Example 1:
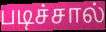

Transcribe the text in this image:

படிச்சால்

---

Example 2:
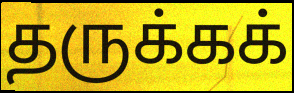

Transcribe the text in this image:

தருக்கக்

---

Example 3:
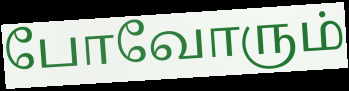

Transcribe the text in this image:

போவோரும்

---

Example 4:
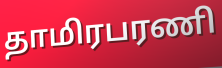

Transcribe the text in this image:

தாமிரபரணி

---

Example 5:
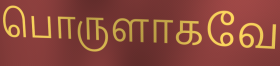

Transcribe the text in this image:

பொருளாகவே